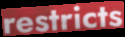
restricts